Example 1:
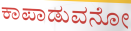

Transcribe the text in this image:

ಕಾಪಾಡುವನೋ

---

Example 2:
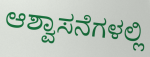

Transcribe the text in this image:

ಆಶ್ವಾಸನೆಗಳಲ್ಲಿ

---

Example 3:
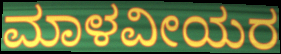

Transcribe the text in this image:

ಮಾಳವೀಯರ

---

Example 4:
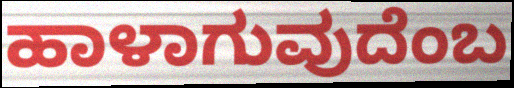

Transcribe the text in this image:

ಹಾಳಾಗುವುದೆಂಬ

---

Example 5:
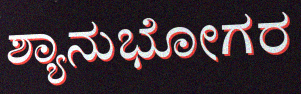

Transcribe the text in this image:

ಶ್ಯಾನುಭೋಗರ